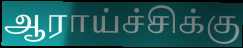
ஆராய்ச்சிக்கு